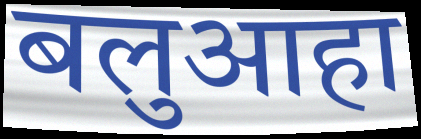
बलुआहा